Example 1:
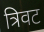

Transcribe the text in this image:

त्रिवट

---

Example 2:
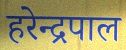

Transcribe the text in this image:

हरेन्द्रपाल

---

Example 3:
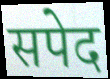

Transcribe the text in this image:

सपेद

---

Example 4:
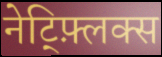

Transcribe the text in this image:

नेट्फ़्लिक्स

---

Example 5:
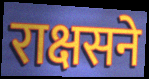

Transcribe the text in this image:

राक्षसने